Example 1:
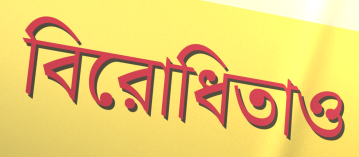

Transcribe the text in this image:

বিরোধিতাও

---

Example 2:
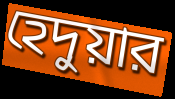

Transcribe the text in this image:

হেদুয়ার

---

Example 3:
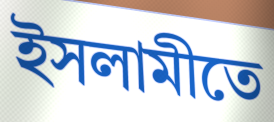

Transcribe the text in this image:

ইসলামীতে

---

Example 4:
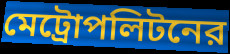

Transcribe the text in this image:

মেট্রোপলিটনের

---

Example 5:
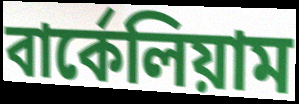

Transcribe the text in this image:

বার্কেলিয়াম